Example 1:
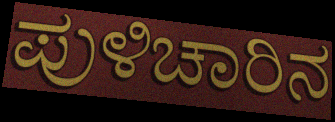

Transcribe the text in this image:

ಪುಳಿಚಾರಿನ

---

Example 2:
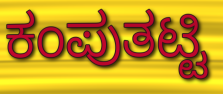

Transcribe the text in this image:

ಕಂಪುತಟ್ಟಿ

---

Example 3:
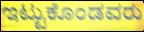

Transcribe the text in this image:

ಇಟ್ಟುಕೊಂಡವರು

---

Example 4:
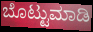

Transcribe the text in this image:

ಬೊಟ್ಟುಮಾಡಿ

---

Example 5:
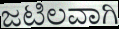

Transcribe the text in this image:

ಜಟಿಲವಾಗಿ